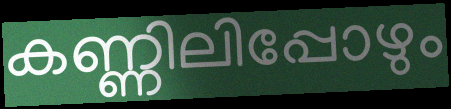
കണ്ണിലിപ്പോഴും